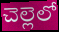
చెల్లెలో